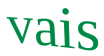
vais